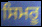
ਸਿਮਰੂ